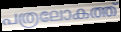
പത്രലോകത്ത്